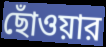
ছোঁওয়ার